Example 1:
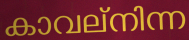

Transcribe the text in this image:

കാവല്നിന്ന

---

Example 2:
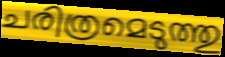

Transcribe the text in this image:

ചരിത്രമെടുത്തു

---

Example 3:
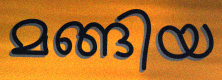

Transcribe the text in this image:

മങ്ങിയ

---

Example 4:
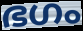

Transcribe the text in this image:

ഭഗം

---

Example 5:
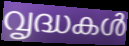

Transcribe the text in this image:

വൃദ്ധകൾ